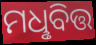
ମଧୢବିତ୍ତ